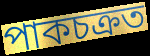
পাকচক্ৰত